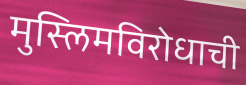
मुस्लिमविरोधाची